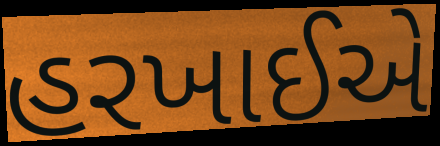
હરખાઈએ